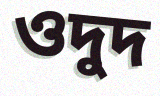
ওদুদ